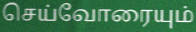
செய்வோரையும்